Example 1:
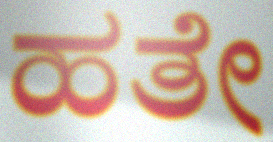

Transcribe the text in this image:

ಹತೇ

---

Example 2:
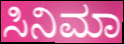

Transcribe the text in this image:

ಸಿನಿಮಾ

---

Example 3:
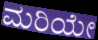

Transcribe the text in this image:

ಮರಿಯೇ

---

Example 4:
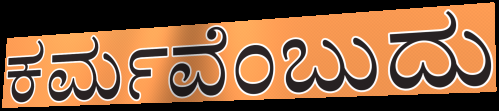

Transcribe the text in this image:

ಕರ್ಮವೆಂಬುದು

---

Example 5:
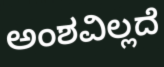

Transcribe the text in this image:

ಅಂಶವಿಲ್ಲದೆ